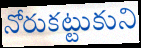
నోరుకట్టుకుని